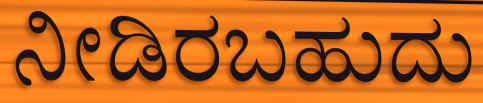
ನೀಡಿರಬಹುದು